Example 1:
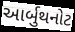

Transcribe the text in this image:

આર્બુથનોટ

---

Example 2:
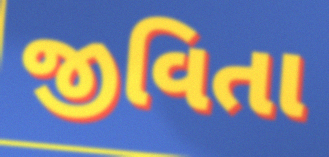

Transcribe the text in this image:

જીવિતા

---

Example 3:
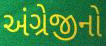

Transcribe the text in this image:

અંગ્રેજીનો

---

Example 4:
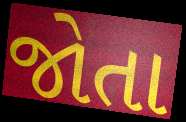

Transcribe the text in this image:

જોતા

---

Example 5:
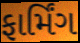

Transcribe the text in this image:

ફાર્મિંગ